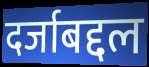
दर्जाबद्दल